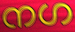
നഗ